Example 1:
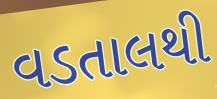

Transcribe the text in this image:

વડતાલથી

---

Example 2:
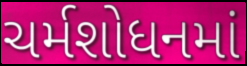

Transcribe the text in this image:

ચર્મશોધનમાં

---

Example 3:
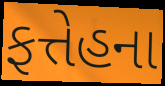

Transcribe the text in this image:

ફત્તેહના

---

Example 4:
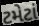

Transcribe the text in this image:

ટમેટાં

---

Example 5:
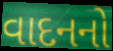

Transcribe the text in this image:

વાદનનો